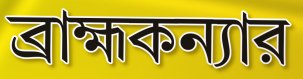
ব্রাহ্মকন্যার